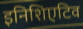
इनिशिएटिव